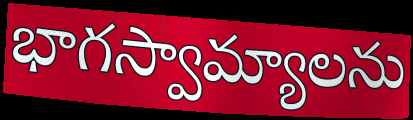
భాగస్వామ్యాలను